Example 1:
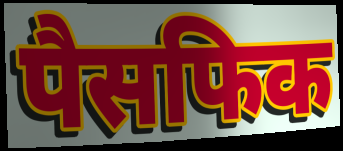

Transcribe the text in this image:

पैसफिक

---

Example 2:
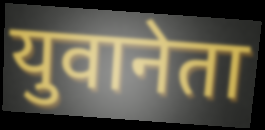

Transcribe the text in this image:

युवानेता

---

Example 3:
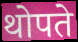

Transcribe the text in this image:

थोपते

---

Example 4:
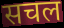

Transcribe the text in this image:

सचल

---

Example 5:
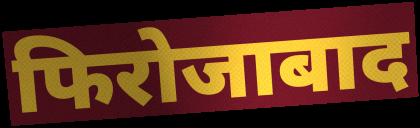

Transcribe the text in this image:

फिरोजाबाद